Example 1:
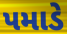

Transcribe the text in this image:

પમાડે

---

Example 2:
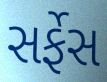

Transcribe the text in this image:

સર્ફેસ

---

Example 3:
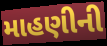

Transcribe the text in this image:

માહણીની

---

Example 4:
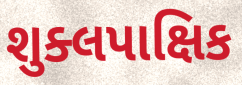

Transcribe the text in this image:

શુક્લપાક્ષિક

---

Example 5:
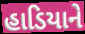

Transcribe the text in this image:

હાડિયાને